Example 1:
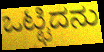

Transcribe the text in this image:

ಒಟ್ಟಿದನು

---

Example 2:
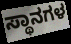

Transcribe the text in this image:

ಸ್ಥಾನಗಳ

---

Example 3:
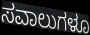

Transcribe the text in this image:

ಸವಾಲುಗಳೂ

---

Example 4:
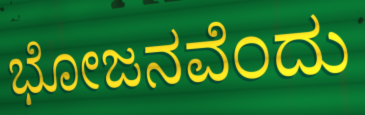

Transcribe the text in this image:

ಭೋಜನವೆಂದು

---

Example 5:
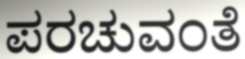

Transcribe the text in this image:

ಪರಚುವಂತೆ